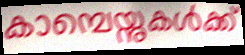
കാമ്പെയ്നുകൾക്ക്